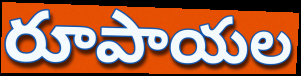
రూపాయల